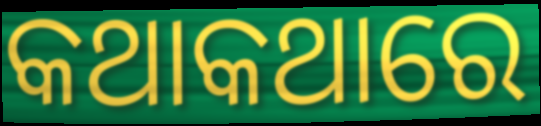
କଥାକଥାରେ